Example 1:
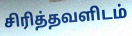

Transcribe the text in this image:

சிரித்தவளிடம்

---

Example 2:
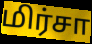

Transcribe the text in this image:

மிர்சா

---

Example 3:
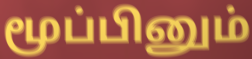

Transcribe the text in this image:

மூப்பினும்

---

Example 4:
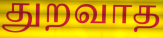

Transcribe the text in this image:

துறவாத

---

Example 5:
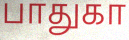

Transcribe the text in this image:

பாதுகா